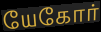
யேகோர்